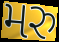
મરુ